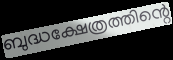
ബുദ്ധക്ഷേത്രത്തിന്റെ